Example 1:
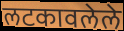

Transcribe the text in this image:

लटकावलेले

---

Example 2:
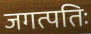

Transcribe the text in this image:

जगत्पतिः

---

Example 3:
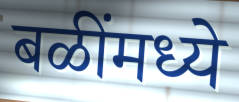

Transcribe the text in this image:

बळींमध्ये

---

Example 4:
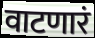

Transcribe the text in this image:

वाटणारं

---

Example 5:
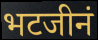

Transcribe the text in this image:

भटजीनं